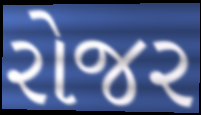
રોજર